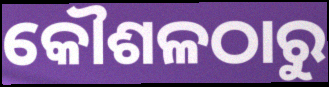
କୌଶଳଠାରୁ